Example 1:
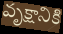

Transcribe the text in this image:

వృక్షానికి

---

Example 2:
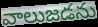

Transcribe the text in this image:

వాలుజడను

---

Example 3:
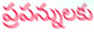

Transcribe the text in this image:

ప్రపన్నులకు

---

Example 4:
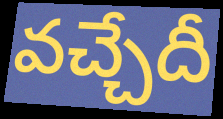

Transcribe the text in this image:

వచ్చేదీ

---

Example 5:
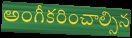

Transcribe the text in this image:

అంగీకరించాల్సిన